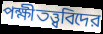
পক্ষীতত্ত্ববিদের